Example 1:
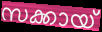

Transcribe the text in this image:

സക്കായ്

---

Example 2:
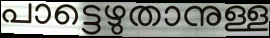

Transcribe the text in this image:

പാട്ടെഴുതാനുള്ള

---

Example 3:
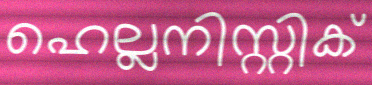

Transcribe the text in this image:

ഹെല്ലനിസ്റ്റിക്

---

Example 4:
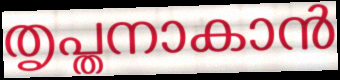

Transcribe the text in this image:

തൃപ്തനാകാൻ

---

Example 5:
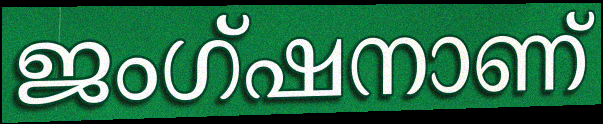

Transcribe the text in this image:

ജംഗ്ഷനാണ്